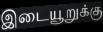
இடையூறுக்கு